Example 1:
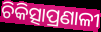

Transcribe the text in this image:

ଚିକିତ୍ସାପ୍ରଣାଳୀ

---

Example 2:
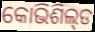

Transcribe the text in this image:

କୋଭିଶିଲ୍‌ଡ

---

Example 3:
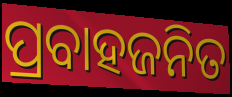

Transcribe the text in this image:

ପ୍ରବାହଜନିତ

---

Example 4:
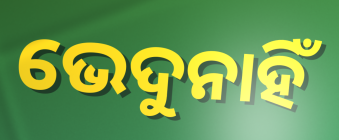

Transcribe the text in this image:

ଭେଦୁନାହିଁ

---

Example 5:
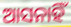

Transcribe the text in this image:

ଆସନାହିଁ